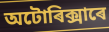
অটোৰিক্সাৰে